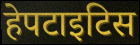
हेपटाइटिस